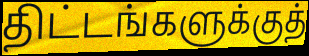
திட்டங்களுக்குத்